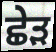
ਛੇੜ